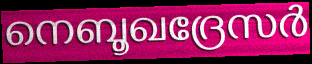
നെബൂഖദ്രേസർ